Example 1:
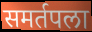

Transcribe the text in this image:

समर्तपला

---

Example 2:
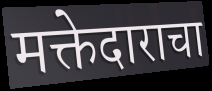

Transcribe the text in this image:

मक्तेदाराचा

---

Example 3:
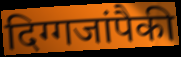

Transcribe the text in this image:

दिग्गजांपैकी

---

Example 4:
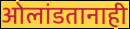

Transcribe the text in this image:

ओलांडतानाही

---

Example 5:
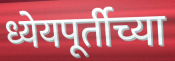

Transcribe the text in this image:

ध्येयपूर्तीच्या